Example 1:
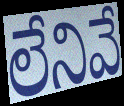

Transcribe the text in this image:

లేనివే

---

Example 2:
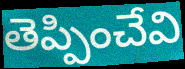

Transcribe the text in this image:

తెప్పించేవి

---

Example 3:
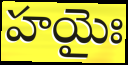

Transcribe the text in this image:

హయైః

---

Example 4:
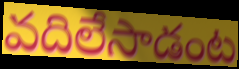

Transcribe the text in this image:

వదిలేసాడంట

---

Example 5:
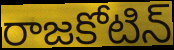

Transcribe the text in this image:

రాజకోటిన్